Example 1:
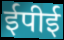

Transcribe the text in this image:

ईपीई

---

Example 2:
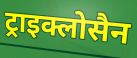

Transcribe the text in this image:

ट्राइक्लोसैन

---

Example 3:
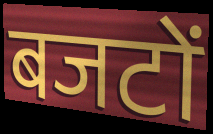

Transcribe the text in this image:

बजटों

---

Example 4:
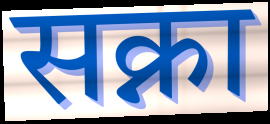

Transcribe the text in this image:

सक्ना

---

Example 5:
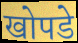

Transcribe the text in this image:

खोपडे